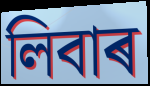
লিবাৰ